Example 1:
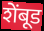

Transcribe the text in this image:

शेंबूड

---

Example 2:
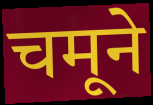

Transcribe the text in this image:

चमूने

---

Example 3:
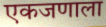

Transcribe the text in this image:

एकजणाला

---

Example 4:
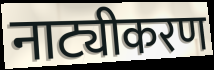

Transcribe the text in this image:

नाट्यीकरण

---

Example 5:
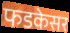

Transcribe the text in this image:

फडकेसर